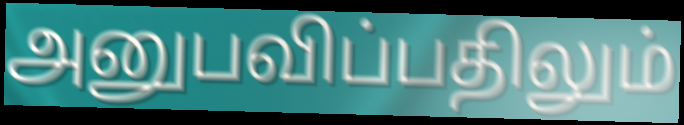
அனுபவிப்பதிலும்